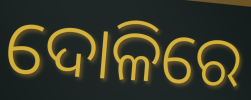
ଦୋଳିରେ